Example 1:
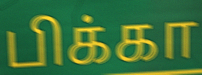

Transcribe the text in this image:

பிக்கா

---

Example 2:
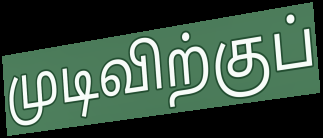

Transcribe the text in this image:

முடிவிற்குப்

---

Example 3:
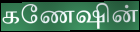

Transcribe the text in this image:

கணேஷின்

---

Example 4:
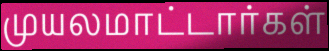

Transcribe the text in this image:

முயலமாட்டார்கள்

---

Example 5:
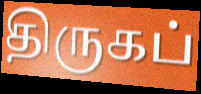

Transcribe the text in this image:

திருகப்